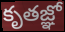
కృతజ్ఞో